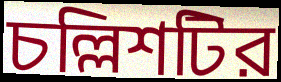
চল্লিশটির